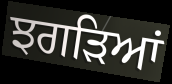
ਝਗੜਿਆਂ